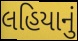
લહિયાનું